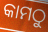
କାମଠୁ